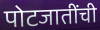
पोटजातींची